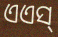
ଏଏସ୍